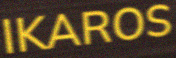
IKAROS